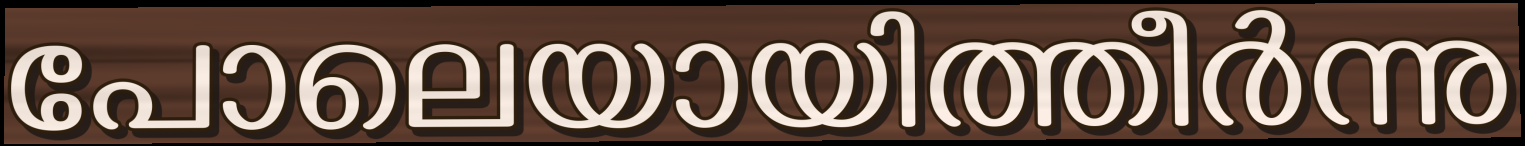
പോലെയായിത്തീർന്നു